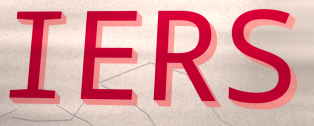
IERS